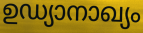
ഉഡ്യാനാഖ്യം